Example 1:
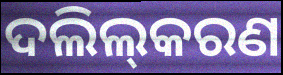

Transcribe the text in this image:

ଦଲିଲ୍‌କରଣ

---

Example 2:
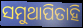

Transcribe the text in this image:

ସମୁଥାପିତାହି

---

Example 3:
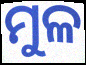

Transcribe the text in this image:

ମୁଳ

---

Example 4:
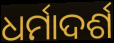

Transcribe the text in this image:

ଧର୍ମାଦର୍ଶ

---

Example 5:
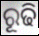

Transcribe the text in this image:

ରୂଢି